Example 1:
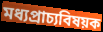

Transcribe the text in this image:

মধ্যপ্রাচ্যবিষয়ক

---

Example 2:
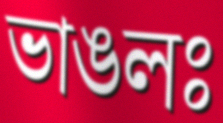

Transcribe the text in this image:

ভাঙলঃ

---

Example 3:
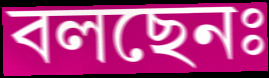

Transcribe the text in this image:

বলছেনঃ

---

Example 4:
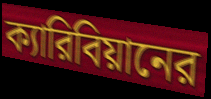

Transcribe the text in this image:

ক্যারিবিয়ানের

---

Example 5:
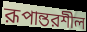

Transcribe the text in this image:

রূপান্তরশীল